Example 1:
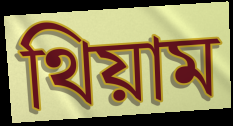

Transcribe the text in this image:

থিয়াম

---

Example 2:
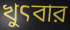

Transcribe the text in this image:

খুৎবার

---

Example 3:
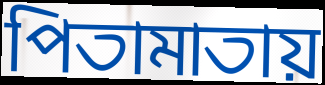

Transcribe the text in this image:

পিতামাতায়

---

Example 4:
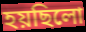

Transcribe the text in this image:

হয়ছিলো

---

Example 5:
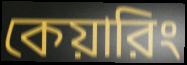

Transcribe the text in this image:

কেয়ারিং